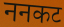
ननकट